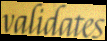
validates